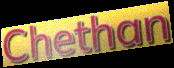
Chethan